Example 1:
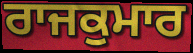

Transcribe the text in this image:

ਰਾਜਕੁਮਾਰ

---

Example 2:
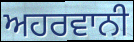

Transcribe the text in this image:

ਅਹਰਵਾਨੀ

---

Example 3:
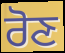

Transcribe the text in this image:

ਰੋਣ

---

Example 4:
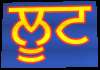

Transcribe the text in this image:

ਲੂਟ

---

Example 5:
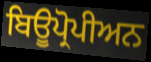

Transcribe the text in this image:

ਬਿਊਪ੍ਰੋਪੀਅਨ